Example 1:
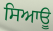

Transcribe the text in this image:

ਸਿਆਊ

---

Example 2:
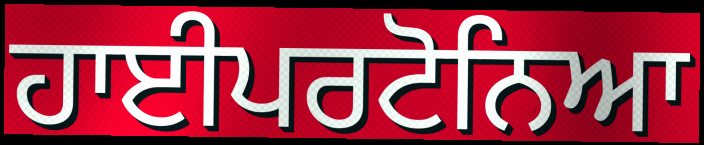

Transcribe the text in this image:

ਹਾਈਪਰਟੋਨਿਆ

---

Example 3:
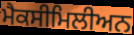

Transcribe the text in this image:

ਮੈਕਸੀਮਿਲੀਅਨ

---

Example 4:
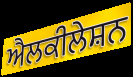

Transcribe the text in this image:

ਐਲਕੀਲੇਸ਼ਨ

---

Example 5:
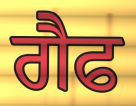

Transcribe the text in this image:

ਗੈਫ